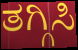
ತಗ್ಗಿಸಿ